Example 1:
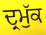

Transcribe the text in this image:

ਦ੍ਰਮੁੱਕ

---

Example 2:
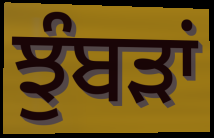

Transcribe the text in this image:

ਝੁੰਬੜਾਂ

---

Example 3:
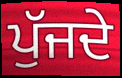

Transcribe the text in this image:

ਪੁੱਜਦੇ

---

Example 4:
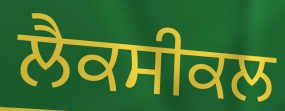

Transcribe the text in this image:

ਲੈਕਸੀਕਲ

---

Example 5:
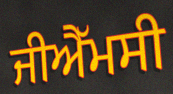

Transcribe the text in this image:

ਜੀਐੱਮਸੀ